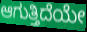
ಆಗುತ್ತಿದೆಯೇ